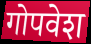
गोपवेश